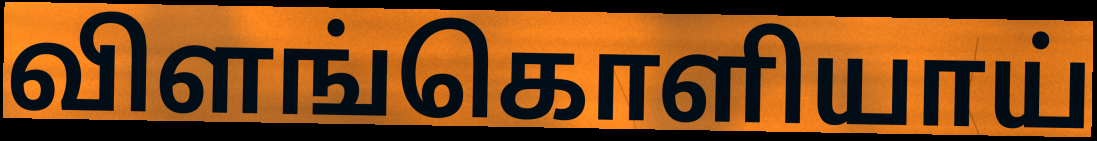
விளங்கொளியாய்